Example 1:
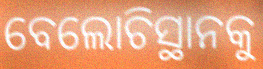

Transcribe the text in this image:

ବେଲୋଚିସ୍ଥାନକୁ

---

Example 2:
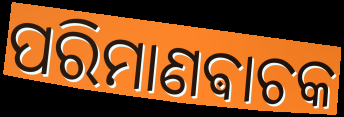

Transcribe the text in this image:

ପରିମାଣଵାଚକ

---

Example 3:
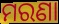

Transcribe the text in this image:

ମରଣା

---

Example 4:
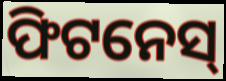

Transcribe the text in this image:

ଫିଟନେସ୍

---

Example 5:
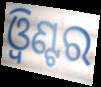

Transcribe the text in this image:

ଓ୍ଵିଣ୍ଟର